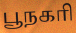
பூநகரி